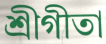
শ্রীগীতা